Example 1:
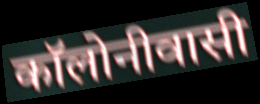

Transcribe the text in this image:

कॉलोनीवासी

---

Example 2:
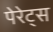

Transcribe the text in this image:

पेरेट्स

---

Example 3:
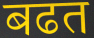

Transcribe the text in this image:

बढत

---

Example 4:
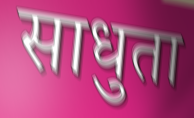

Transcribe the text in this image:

साधुता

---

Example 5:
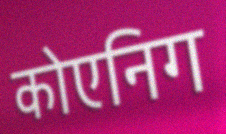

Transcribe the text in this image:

कोएनिग